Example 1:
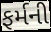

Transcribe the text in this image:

ફર્મની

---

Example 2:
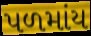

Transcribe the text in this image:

પળમાંય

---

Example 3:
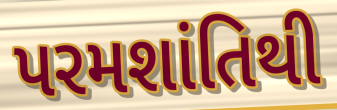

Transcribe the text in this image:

પરમશાંતિથી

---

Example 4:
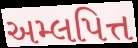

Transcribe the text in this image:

અમ્લપિત્ત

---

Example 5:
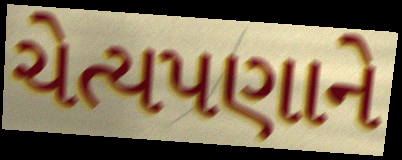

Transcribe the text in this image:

ચેત્યપણાને